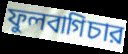
ফুলবাগিচার